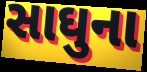
સાઘુના